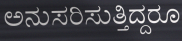
ಅನುಸರಿಸುತ್ತಿದ್ದರೂ